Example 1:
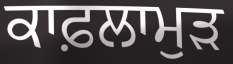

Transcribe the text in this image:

ਕਾਫ਼ਲਾਮੁੜ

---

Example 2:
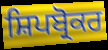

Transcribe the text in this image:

ਸ਼ਿਪਬ੍ਰੋਕਰ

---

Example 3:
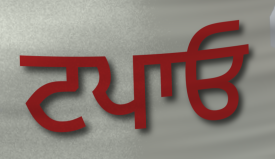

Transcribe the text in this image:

ਟਪਾਓ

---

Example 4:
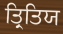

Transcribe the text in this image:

ਤ੍ਰਿਤਿਯ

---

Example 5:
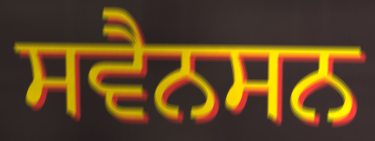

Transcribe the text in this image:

ਸਵੈਨਸਨ